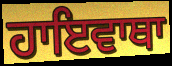
ਹਾਇਵਾਥਾ